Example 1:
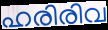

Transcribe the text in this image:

ഹരിരിവ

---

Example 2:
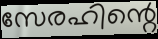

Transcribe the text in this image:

സേരഹിന്റെ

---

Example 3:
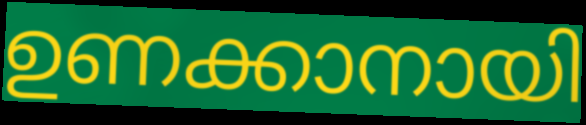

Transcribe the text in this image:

ഉണക്കാനായി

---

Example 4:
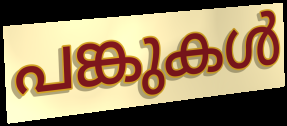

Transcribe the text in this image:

പങ്കുകൾ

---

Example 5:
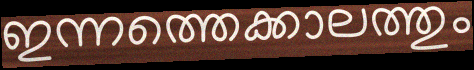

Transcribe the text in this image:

ഇന്നത്തെക്കാലത്തും